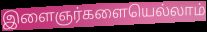
இளைஞர்களையெல்லாம்